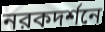
নরকদর্শনে